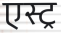
एस्ट्र